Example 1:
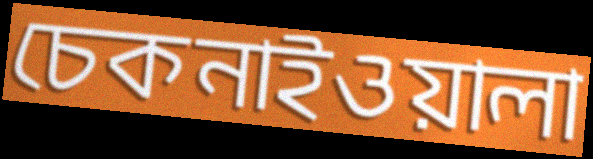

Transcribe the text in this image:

চেকনাইওয়ালা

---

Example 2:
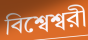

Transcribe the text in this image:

বিশ্বেশ্বরী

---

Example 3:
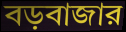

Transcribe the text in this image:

বড়বাজার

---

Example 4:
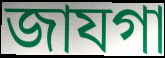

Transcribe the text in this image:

জাযগা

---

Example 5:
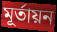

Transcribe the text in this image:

মূর্তায়ন